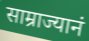
साम्राज्यानं